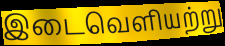
இடைவெளியற்று